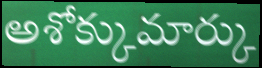
అశోక్కుమార్కు